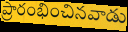
ప్రారంభించినవాడు